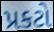
પ્રકટો